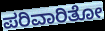
ಪರಿವಾರಿತೋ